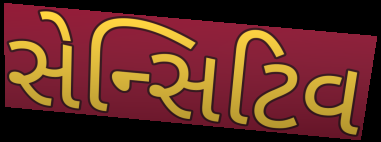
સેન્સિટિવ